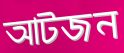
আটজন